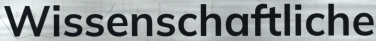
Wissenschaftliche